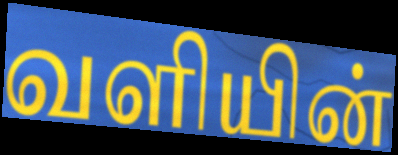
வளியின்